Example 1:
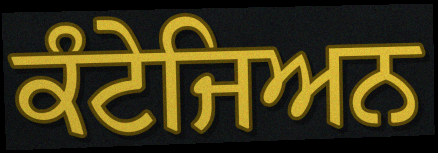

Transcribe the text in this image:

ਕੰਟੇਜਿਅਨ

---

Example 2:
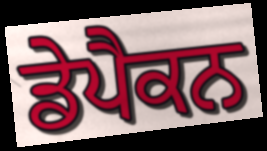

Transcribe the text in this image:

ਡੇਪੈਕਨ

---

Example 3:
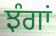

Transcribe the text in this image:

ਝੰਗਾਂ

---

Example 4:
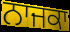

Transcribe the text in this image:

ਨਾਜਕਾ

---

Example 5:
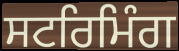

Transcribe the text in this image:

ਸਟਰਿਮਿੰਗ